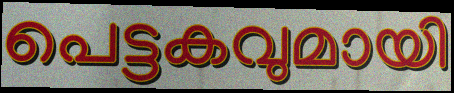
പെട്ടകവുമായി